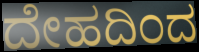
ದೇಹದಿಂದ